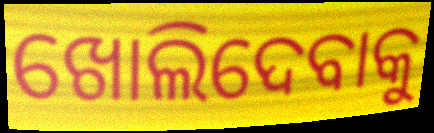
ଖୋଲିଦେବାକୁ